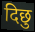
दिछु